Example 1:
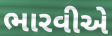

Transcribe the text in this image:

ભારવીએ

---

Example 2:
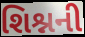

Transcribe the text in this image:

શિશ્નની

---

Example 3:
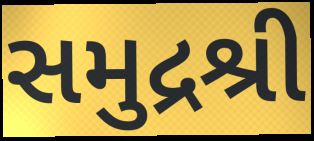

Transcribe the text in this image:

સમુદ્રશ્રી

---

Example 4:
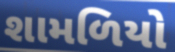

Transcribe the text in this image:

શામળિયો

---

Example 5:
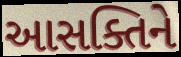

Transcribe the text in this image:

આસક્તિને